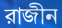
রাজীন